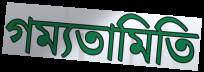
গম্যতামিতি